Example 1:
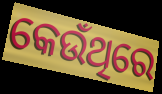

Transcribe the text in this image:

କେଉଁଥିରେ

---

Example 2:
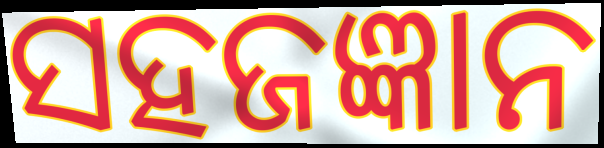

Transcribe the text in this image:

ସହଜଜ୍ଞାନ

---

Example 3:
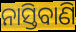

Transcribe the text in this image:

ନାସ୍ତିବାଣି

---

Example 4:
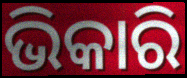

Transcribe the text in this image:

ଭିକାରି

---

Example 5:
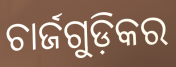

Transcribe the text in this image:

ଚାର୍ଜଗୁଡ଼ିକର